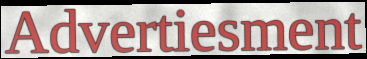
Advertiesment